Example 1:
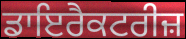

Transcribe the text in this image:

ਡਾਇਰੈਕਟਰੀਜ਼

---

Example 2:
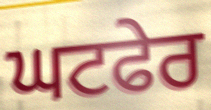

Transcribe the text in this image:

ਘਟਫੇਰ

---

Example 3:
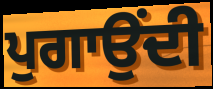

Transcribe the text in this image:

ਪੁਗਾਉਂਦੀ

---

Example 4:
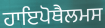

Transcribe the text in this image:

ਹਾਇਪੋਥੈਲਮਸ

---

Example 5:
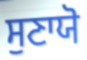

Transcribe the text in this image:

ਸੁਣਾਯੋ